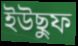
ইউছুফ